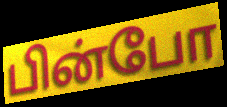
பின்போ